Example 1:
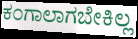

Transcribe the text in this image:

ಕಂಗಾಲಾಗಬೇಕಿಲ್ಲ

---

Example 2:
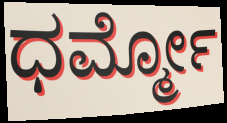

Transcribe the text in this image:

ಧರ್ಮ್ಮೋ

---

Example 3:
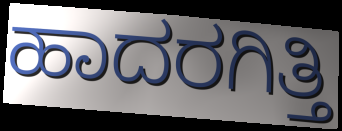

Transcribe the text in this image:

ಹಾದರಗಿತ್ತಿ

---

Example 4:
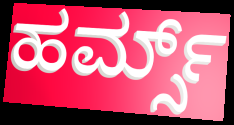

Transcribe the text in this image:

ಹರ್ಮ್ಸ್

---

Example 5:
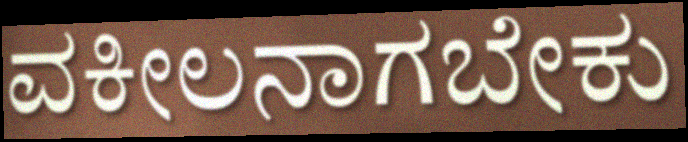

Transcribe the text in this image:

ವಕೀಲನಾಗಬೇಕು